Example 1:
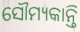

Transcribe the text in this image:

ସୌମ୍ୟକାନ୍ତି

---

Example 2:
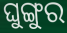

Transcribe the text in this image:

ଘୁଙ୍ଗୁର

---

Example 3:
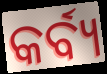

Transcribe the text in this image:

କର୍ବ୍ୟ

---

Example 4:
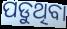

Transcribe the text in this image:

ପଡୁଥିବା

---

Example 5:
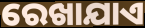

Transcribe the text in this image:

ରେଖାଯାଏ